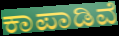
ಕಾಪಾಡಿವೆ